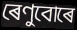
ৰেণুবোৰে